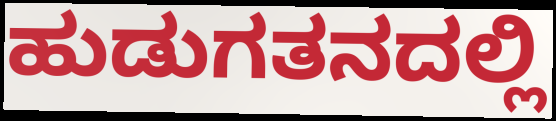
ಹುಡುಗತನದಲ್ಲಿ